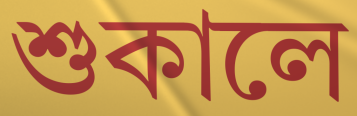
শুকালে